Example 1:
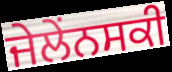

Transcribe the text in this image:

ਜੇਲੇਂਨਸਕੀ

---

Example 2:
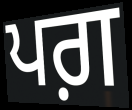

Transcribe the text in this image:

ਪਗ਼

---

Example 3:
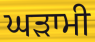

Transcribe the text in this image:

ਘੜਾਮੀ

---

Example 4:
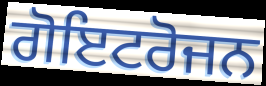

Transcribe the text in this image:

ਗੋਇਟਰੋਜਨ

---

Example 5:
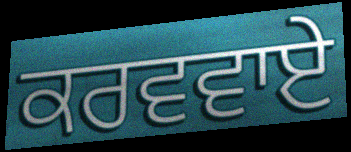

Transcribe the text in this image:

ਕਰਵਵਾਏ